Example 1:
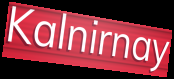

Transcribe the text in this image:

Kalnirnay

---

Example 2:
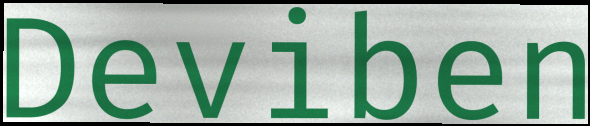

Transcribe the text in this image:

Deviben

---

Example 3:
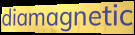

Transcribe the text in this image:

diamagnetic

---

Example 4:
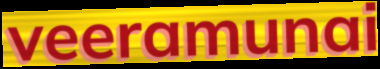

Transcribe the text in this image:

veeramunai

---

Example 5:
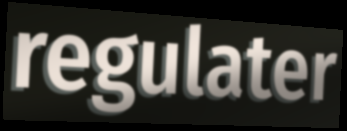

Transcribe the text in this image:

regulater